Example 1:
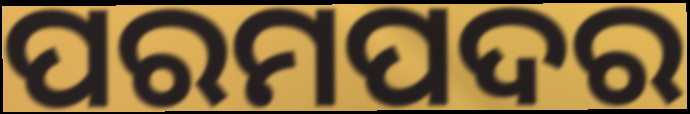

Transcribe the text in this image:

ପରମପଦର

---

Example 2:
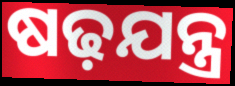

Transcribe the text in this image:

ଷଢ଼ଯନ୍ତ୍ର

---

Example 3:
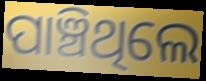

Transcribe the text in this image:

ପାଞ୍ଚିଥିଲେ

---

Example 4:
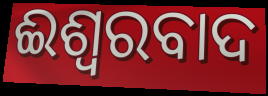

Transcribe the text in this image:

ଈଶ୍ବରବାଦ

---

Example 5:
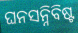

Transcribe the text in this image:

ଘନସନ୍ନିବିଷ୍ଟ